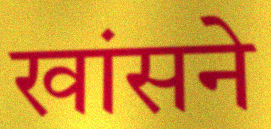
खांसने